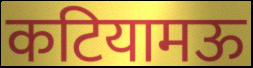
कटियामऊ